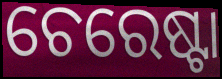
ଚେରେଷ୍ଟା